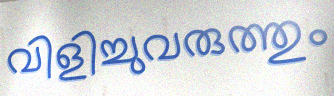
വിളിച്ചുവരുത്തും